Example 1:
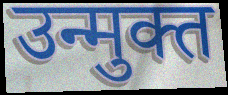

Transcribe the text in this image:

उन्मुक्त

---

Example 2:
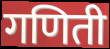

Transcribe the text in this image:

गणिती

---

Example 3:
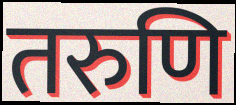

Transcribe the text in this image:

तरुणि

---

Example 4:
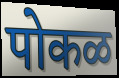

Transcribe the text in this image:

पोकळ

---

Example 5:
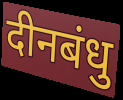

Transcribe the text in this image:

दीनबंधु